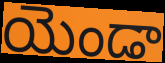
యెండా